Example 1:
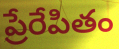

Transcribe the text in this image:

ప్రేరేపితం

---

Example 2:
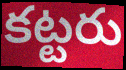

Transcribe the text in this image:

కట్టరు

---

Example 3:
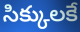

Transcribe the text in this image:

సిక్కులకే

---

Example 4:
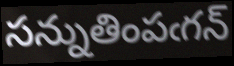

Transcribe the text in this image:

సన్నుతింపఁగన్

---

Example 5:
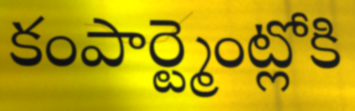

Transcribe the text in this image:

కంపార్ట్మెంట్లోకి